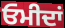
ਓਮੀਦਾਂ